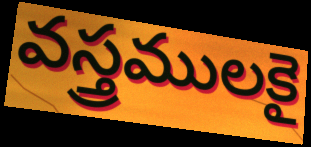
వస్త్రములకై